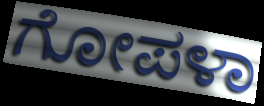
ಗೋಪಳಾ